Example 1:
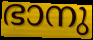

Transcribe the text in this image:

ഭാനു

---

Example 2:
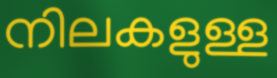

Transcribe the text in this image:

നിലകളുള്ള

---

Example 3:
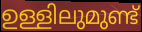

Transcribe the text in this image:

ഉള്ളിലുമുണ്ട്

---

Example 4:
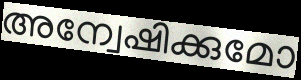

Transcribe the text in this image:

അന്വേഷിക്കുമോ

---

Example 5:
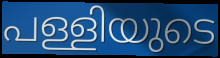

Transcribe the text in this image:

പള്ളിയുടെ